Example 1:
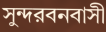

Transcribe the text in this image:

সুন্দরবনবাসী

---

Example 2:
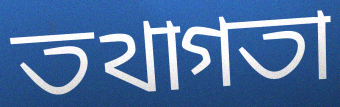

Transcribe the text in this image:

তথাগতা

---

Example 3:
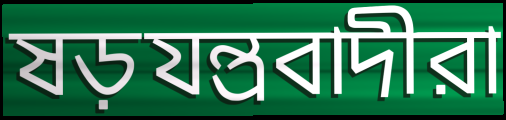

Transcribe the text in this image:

ষড়যন্ত্রবাদীরা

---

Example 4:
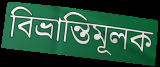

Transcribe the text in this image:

বিভ্রান্তিমূলক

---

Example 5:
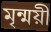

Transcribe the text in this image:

মৃন্ময়ী